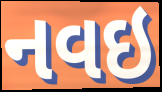
નવઇ